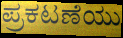
ಪ್ರಕಟಣೆಯು